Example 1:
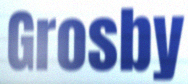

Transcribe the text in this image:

Grosby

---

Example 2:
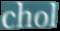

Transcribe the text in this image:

chol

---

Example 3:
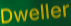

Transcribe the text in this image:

Dweller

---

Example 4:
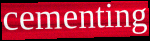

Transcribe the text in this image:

cementing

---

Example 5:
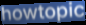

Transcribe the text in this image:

howtopic